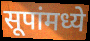
सूपांमध्ये